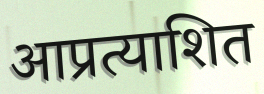
आप्रत्याशित